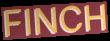
FINCH